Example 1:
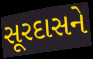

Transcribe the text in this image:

સૂરદાસને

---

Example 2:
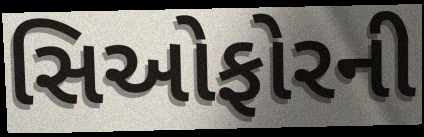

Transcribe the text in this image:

સિઓફોરની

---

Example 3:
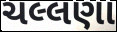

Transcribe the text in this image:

ચલ્લણા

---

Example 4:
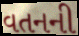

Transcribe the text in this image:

વતનની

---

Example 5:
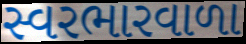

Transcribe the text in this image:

સ્વરભારવાળા